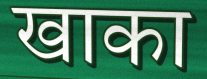
खाका